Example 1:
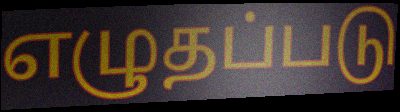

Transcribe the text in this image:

எழுதப்படு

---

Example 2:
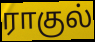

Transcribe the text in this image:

ராகுல்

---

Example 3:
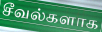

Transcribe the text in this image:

சீவல்களாக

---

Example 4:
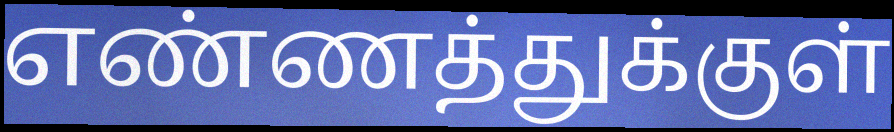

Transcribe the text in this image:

எண்ணத்துக்குள்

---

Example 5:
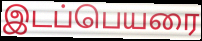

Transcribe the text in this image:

இடப்பெயரை